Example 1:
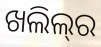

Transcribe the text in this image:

ଖଲିଲ୍‍ର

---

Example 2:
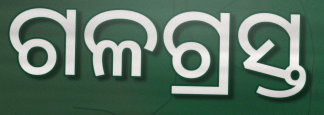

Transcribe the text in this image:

ଗଳଗ୍ରସ୍ତ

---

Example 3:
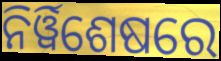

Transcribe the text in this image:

ନିର୍ୱିଶେଷରେ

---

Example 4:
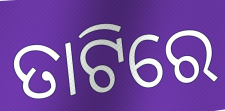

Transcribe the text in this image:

ତାଟିରେ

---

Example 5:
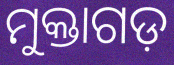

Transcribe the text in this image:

ମୁକ୍ତାଗଡ଼